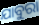
ଯାବୁରା